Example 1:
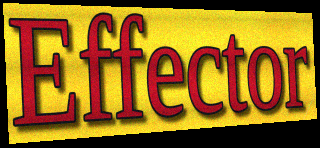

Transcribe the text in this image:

Effector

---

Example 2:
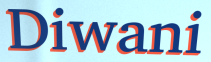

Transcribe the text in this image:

Diwani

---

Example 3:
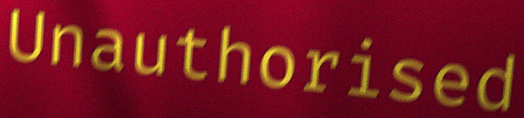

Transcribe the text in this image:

Unauthorised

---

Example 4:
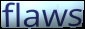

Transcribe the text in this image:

flaws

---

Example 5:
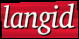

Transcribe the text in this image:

langid